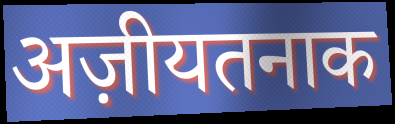
अज़ीयतनाक